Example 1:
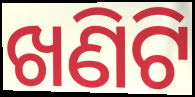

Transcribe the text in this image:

ଖଣିଟି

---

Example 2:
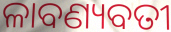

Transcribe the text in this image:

ଳାବଣ୍ୟବତୀ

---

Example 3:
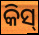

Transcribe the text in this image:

କିସ୍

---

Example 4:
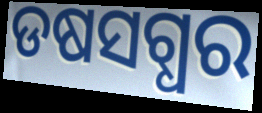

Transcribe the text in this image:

ଡଷସଗ୍ଧର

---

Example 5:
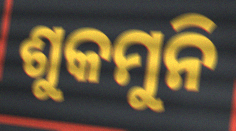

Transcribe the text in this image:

ଶୁକମୁନି